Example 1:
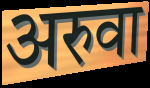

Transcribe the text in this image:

अरुवा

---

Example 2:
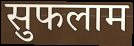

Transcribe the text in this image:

सुफलाम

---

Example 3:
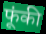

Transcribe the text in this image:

फूंकी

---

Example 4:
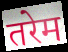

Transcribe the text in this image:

तरेम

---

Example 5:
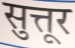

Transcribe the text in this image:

सुत्तूर